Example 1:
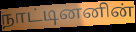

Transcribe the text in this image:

நாட்டினனின்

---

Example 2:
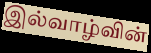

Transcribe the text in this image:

இல்வாழ்வின்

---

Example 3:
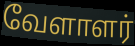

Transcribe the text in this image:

வேளாளர்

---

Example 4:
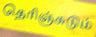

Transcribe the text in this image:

தெரிஞ்சுடும்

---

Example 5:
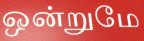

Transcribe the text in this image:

ஒன்றுமே